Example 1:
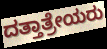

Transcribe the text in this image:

ದತ್ತಾತ್ರೇಯರು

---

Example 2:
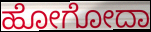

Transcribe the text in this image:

ಹೋಗೋದಾ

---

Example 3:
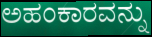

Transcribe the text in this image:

ಅಹಂಕಾರವನ್ನು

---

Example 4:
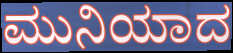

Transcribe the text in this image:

ಮುನಿಯಾದ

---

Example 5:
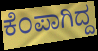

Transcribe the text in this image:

ಕೆಂಪಾಗಿದ್ದ